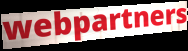
webpartners